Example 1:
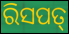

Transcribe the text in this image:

ରିସପତ୍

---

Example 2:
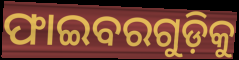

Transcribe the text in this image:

ଫାଇବରଗୁଡ଼ିକୁ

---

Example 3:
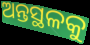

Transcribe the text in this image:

ଅନ୍ତସ୍ଥଳକୁ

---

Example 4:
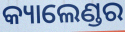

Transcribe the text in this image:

କ୍ୟାଲେଣ୍ଡର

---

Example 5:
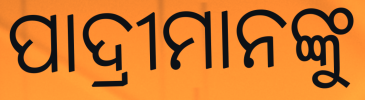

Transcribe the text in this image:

ପାଦ୍ରୀମାନଙ୍କୁ